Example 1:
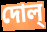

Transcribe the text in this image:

দোল্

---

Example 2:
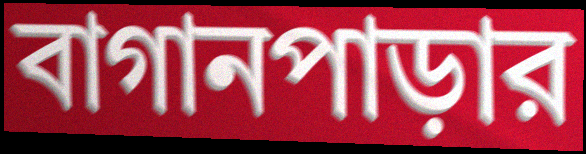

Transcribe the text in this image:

বাগানপাড়ার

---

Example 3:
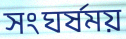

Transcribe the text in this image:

সংঘর্ষময়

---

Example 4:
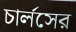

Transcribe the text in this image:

চার্লসের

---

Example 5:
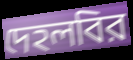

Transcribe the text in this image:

দেহলবির